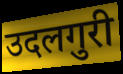
उदलगुरी